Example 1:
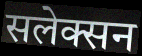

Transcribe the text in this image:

सलेक्सन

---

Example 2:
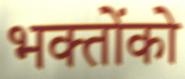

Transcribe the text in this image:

भक्तोंको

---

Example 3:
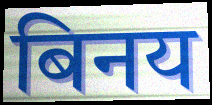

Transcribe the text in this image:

बिनय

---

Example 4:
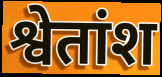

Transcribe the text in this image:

श्वेतांश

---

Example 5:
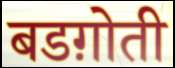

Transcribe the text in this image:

बडग़ोती